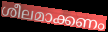
ശീലമാക്കണം